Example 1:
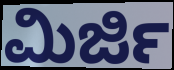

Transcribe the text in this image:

ಮಿರ್ಜಿ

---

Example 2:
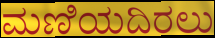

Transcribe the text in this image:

ಮಣಿಯದಿರಲು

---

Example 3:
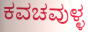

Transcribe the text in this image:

ಕವಚವುಳ್ಳ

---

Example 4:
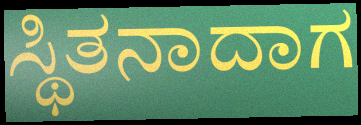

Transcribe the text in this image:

ಸ್ಥಿತನಾದಾಗ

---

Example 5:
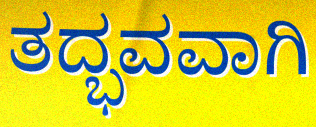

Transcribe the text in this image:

ತದ್ಭವವಾಗಿ